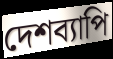
দেশব্যাপি